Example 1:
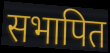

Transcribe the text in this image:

सभापित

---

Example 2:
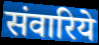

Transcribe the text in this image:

संवारिये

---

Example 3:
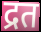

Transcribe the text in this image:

द्रत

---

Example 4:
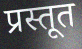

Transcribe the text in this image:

प्रस्तूत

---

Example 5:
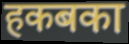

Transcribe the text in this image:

हकबका